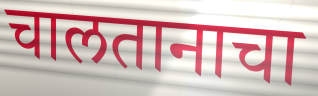
चालतानाचा